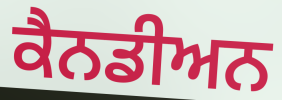
ਕੈਨਡੀਅਨ